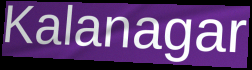
Kalanagar